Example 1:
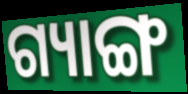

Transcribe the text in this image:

ଗ୍ୟାଙ୍ଗ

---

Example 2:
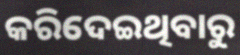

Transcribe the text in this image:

କରିଦେଇଥିବାରୁ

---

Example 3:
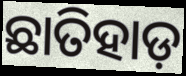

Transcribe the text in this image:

ଛାତିହାଡ଼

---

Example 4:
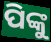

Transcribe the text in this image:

ପିଙ୍କୁ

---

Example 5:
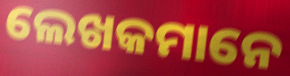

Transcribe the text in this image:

ଲେଖକମାନେ